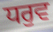
ਧਰੁਵ